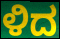
ಳಿದ